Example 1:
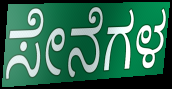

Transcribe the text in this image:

ಸೇನೆಗಳ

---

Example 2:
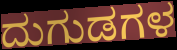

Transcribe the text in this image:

ದುಗುಡಗಳ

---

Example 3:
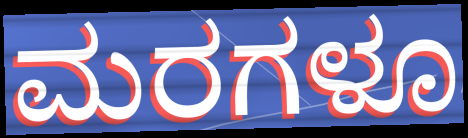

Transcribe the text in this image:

ಮರಗಳೂ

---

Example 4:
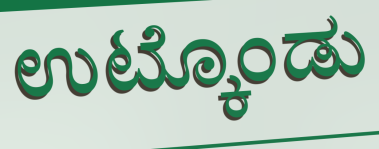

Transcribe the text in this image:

ಉಟ್ಕೊಂಡು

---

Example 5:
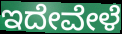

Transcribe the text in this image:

ಇದೇವೇಳೆ